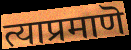
त्याप्रमाणॆ